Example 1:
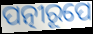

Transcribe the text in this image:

ପତ୍ନୀରୂପେ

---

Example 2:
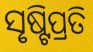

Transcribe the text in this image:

ସୃଷ୍ଟିପ୍ରତି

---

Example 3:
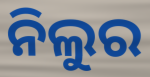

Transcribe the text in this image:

ନିଲୁର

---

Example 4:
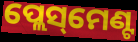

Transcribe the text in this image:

ପ୍ଲେସ୍‌ମେଣ୍ଟ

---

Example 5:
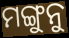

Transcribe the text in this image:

ମଙ୍ଗୁନୁ